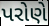
પરોણે